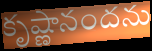
కృష్ణానందను